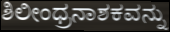
ಶಿಲೀಂಧ್ರನಾಶಕವನ್ನು